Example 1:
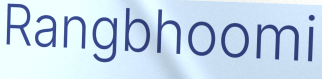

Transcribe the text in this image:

Rangbhoomi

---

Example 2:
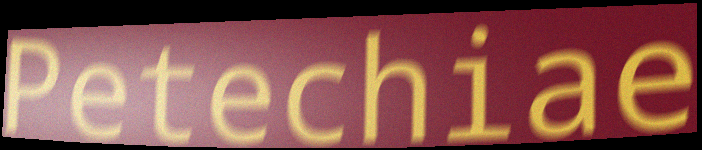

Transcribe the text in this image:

Petechiae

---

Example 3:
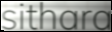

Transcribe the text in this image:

sithara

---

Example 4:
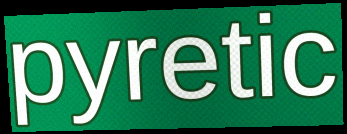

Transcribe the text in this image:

pyretic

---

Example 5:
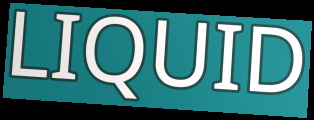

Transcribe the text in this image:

LIQUID